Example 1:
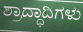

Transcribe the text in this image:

ಶ್ರಾದ್ಧಾದಿಗಳು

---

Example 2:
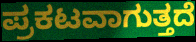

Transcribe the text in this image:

ಪ್ರಕಟವಾಗುತ್ತದೆ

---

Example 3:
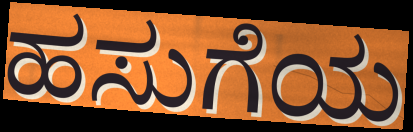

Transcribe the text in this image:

ಹಸುಗೆಯ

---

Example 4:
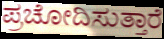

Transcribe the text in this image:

ಪ್ರಚೋದಿಸುತ್ತಾರೆ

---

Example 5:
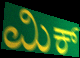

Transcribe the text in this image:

ಮಿಕ್